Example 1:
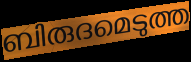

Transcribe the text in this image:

ബിരുദമെടുത്ത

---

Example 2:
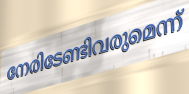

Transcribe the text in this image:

നേരിടേണ്ടിവരുമെന്ന്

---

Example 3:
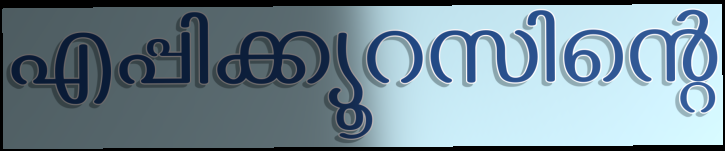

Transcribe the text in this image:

എപ്പിക്ക്യൂറസിന്റെ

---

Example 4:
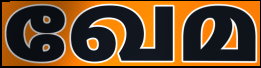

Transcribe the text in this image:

ഖേമ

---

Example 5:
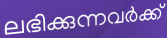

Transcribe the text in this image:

ലഭിക്കുന്നവർക്ക്